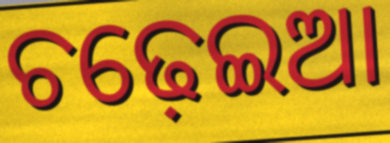
ଚଢ଼େଇଆ